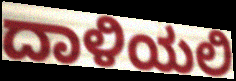
ದಾಳಿಯಲಿ